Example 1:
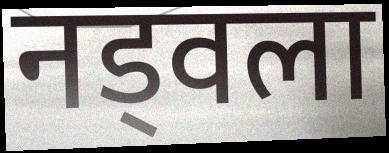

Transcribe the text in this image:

नड्वला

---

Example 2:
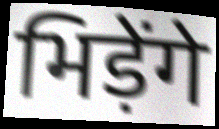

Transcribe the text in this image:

भिड़ेंगे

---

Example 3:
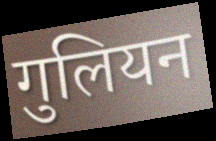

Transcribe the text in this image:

गुलियन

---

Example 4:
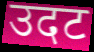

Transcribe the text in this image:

उदट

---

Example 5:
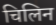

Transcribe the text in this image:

चिलिन